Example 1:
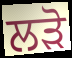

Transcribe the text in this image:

ਲੜੋ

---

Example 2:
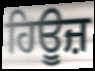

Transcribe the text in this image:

ਹਿਊਜ਼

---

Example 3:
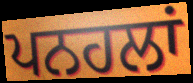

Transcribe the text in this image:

ਪਨਹਲਾਂ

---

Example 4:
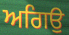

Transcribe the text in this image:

ਅਗਿਉ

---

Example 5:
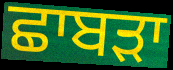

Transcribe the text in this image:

ਛਾਬੜਾ